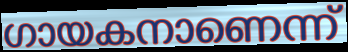
ഗായകനാണെന്ന്